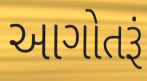
આગોતરૂં